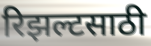
रिझल्टसाठी